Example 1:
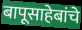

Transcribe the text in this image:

बापूसाहेबांचे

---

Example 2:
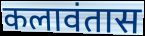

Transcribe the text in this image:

कलावंतास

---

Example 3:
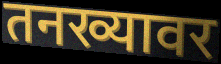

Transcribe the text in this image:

तनख्यावर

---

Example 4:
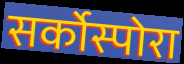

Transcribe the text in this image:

सर्कोस्पोरा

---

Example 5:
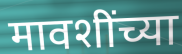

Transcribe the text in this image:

मावशींच्या